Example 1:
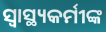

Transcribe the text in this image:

ସ୍ବାସ୍ଥ୍ୟକର୍ମୀଙ୍କ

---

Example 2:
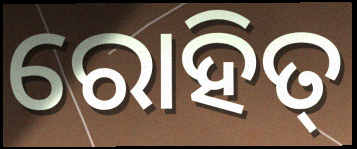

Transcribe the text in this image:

ରୋହିତ୍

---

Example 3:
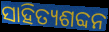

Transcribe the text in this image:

ସାହିତ୍ୟଶବ୍ଦନ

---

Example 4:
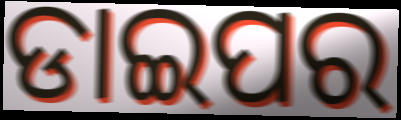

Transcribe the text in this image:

ଡାଇପର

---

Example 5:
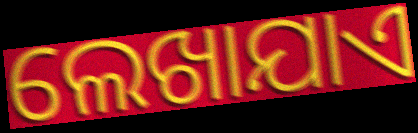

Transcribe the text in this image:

ଲେଖାଯାଏ